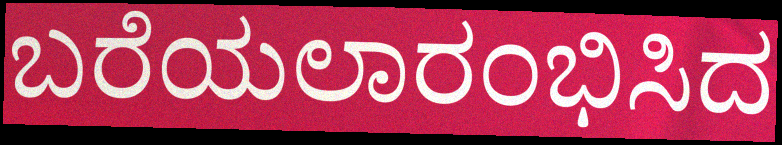
ಬರೆಯಲಾರಂಭಿಸಿದ